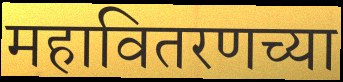
महावितरणच्या